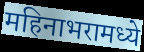
महिनाभरामध्ये